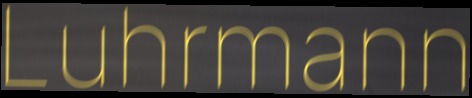
Luhrmann